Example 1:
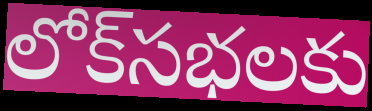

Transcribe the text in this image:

లోక్‌సభలకు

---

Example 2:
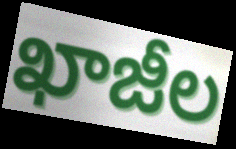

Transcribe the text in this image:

ఖాజీల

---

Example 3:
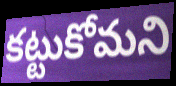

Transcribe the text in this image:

కట్టుకోమని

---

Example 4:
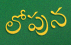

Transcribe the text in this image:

లోపున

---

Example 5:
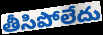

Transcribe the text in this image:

తీసిపోలేదు